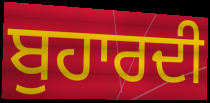
ਬੁਹਾਰਦੀ